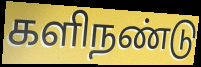
களிநண்டு